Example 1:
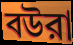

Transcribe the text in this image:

বউরা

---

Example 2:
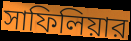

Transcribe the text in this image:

সাফিলিয়ার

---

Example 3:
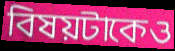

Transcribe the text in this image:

বিষয়টাকেও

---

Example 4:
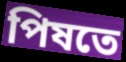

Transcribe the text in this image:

পিষতে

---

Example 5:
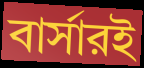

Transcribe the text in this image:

বার্সারই